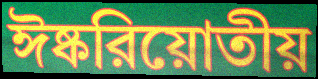
ঈষ্করিয়োতীয়